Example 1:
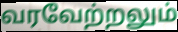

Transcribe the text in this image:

வரவேற்றலும்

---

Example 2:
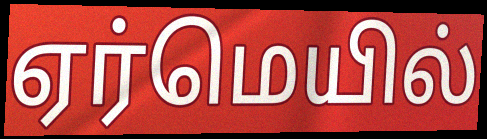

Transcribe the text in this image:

ஏர்மெயில்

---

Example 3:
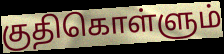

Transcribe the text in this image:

குதிகொள்ளும்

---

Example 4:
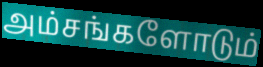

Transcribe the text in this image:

அம்சங்களோடும்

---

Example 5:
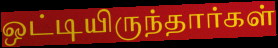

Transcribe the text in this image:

ஒட்டியிருந்தார்கள்